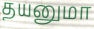
தயனுமா